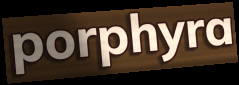
porphyra